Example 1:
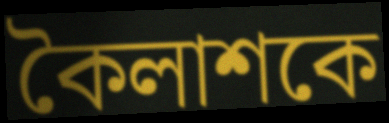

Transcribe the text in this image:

কৈলাশকে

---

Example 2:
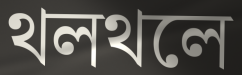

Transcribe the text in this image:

থলথলে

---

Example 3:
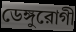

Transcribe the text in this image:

ডেঙ্গুরোগী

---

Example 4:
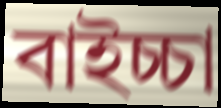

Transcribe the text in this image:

বাইচ্চা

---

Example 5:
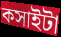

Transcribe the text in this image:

কসাইটা